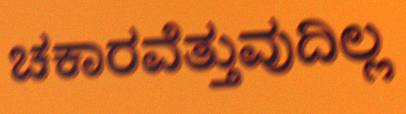
ಚಕಾರವೆತ್ತುವುದಿಲ್ಲ